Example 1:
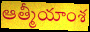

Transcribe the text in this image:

ఆత్మీయాంశ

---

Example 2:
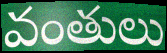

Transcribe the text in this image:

వంతులు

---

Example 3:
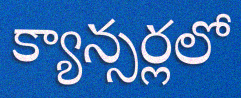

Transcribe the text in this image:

క్యాన్సర్లలో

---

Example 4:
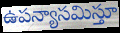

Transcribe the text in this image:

ఉపన్యాసమిస్తూ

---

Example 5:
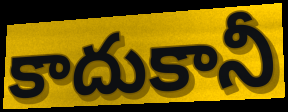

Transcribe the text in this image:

కాదుకానీ